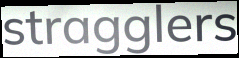
stragglers